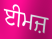
ਈਮਜ਼